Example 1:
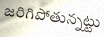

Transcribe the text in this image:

జరిగిపోతున్నట్టు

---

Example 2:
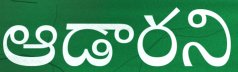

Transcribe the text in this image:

ఆడారని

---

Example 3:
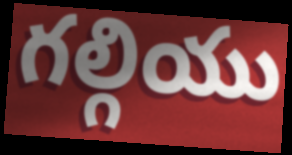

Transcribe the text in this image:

గల్గియు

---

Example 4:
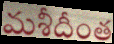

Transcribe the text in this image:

మశీదీంత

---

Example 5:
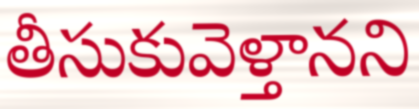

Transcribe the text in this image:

తీసుకువెళ్తానని